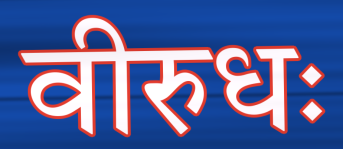
वीरुधः